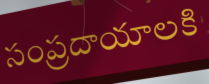
సంప్రదాయాలకి